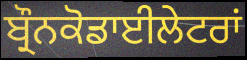
ਬ੍ਰੌਨਕੋਡਾਈਲੇਟਰਾਂ